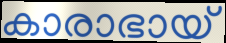
കാരാഭായ്